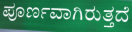
ಪೂರ್ಣವಾಗಿರುತ್ತದೆ